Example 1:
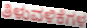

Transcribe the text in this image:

ತಿಳುವಳಿಕೆಗಳ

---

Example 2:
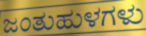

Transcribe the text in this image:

ಜಂತುಹುಳಗಳು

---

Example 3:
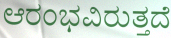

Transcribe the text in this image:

ಆರಂಭವಿರುತ್ತದೆ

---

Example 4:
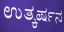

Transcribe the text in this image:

ಉತ್ಕರ್ಷನ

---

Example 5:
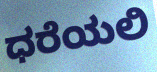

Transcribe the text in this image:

ಧರೆಯಲಿ